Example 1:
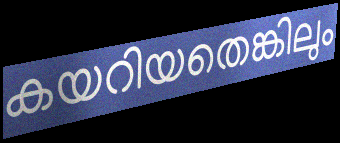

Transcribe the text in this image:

കയറിയതെങ്കിലും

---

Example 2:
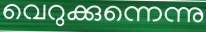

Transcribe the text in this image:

വെറുക്കുന്നെന്നു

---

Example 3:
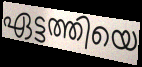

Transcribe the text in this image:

ഏട്ടത്തിയെ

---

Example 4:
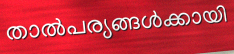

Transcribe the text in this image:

താൽപര്യങ്ങൾക്കായി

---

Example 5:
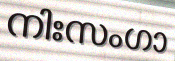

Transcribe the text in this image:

നിഃസംഗാ